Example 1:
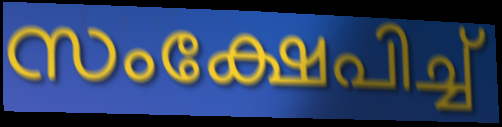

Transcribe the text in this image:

സംക്ഷേപിച്ച്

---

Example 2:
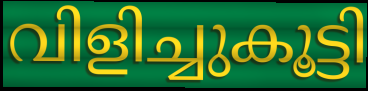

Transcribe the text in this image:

വിളിച്ചുകൂട്ടി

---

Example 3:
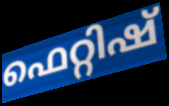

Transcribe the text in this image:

ഫെറ്റിഷ്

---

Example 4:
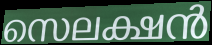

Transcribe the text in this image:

സെലക്ഷൻ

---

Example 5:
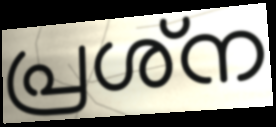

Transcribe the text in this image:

പ്രശ്‌ന